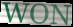
WON